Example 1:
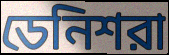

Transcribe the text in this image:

ডেনিশরা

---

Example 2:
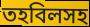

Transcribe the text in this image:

তহবিলসহ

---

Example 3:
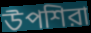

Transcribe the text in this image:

উপশিরা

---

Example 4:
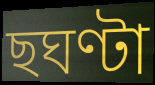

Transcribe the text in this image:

ছঘণ্টা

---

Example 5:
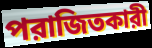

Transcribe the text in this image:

পরাজিতকারী